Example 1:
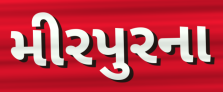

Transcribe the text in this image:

મીરપુરના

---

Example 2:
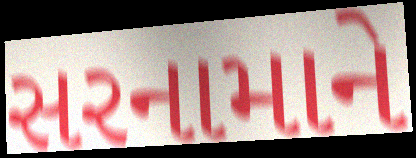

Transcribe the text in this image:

સરનામાને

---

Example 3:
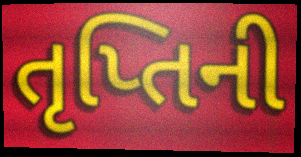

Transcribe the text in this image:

તૃપ્તિની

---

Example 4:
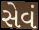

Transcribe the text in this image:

સેવં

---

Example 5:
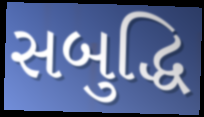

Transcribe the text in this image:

સબુદ્ધિ